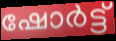
ഷോർട്ട്